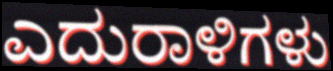
ಎದುರಾಳಿಗಳು